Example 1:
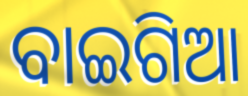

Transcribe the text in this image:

ବାଇଗିଆ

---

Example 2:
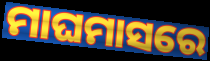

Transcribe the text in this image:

ମାଘମାସରେ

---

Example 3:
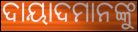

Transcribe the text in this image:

ଦାୟାଦମାନଙ୍କୁ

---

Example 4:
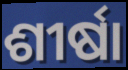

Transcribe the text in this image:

ଶୀର୍ଷା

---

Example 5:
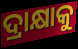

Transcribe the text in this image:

ଦ୍ରାକ୍ଷାକୁ